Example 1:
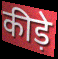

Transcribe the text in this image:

कीड़े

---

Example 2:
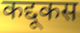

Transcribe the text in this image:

कद्दूकस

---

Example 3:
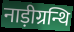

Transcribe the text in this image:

नाड़ीग्रन्थि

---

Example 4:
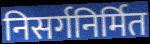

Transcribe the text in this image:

निसर्गनिर्मित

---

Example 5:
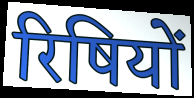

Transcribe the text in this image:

रिषियों